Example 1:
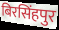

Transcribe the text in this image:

बिरसिंहपुर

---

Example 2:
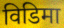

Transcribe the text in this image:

विडिमा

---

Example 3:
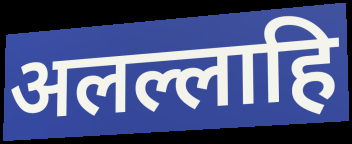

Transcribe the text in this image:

अलल्लाहि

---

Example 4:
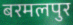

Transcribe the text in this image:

बरमलपुर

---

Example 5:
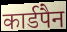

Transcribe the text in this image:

कार्डपैन